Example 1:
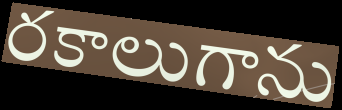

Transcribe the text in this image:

రకాలుగాను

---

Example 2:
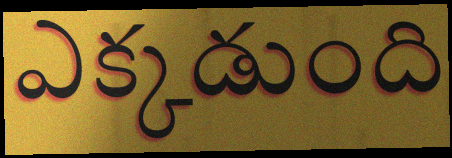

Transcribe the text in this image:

ఎక్కడుంది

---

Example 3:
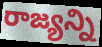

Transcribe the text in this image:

రాజ్యన్ని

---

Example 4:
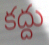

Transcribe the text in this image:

కద్దు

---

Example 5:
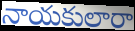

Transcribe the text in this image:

నాయకులారా